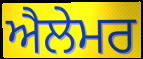
ਐਲੇਮਰ